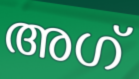
അഗ്